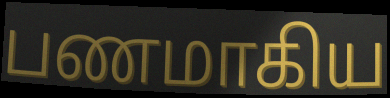
பணமாகிய